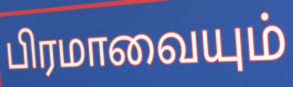
பிரமாவையும்